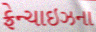
ફ્રેન્ચાઇઝના